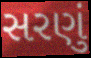
સરણું